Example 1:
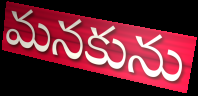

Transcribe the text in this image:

మనకును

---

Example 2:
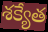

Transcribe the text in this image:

శక్యేత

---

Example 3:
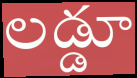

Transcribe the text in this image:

లడ్డూ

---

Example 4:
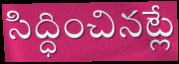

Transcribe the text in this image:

సిద్ధించినట్లే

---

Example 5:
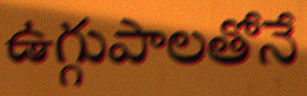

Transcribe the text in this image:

ఉగ్గుపాలతోనే